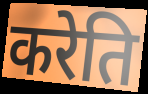
करेति